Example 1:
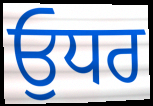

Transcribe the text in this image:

ਓੁਧਰ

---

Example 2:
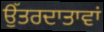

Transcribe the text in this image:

ਉੱਤਰਦਾਤਾਵਾਂ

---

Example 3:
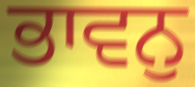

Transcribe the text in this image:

ਭਾਵਨੁ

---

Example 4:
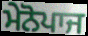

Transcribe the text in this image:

ਮੇਨੋਪਾਜ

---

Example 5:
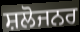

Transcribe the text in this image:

ਸ਼ਲੋਜਨਰ